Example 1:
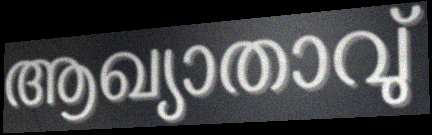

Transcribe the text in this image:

ആഖ്യാതാവു്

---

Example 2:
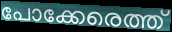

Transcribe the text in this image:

പോക്കേരെത്ത്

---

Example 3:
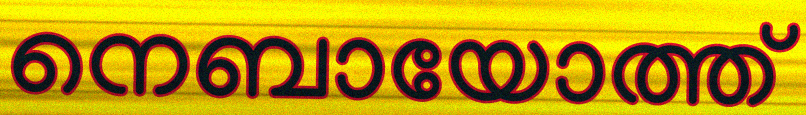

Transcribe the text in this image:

നെബായോത്ത്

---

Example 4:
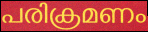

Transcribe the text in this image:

പരിക്രമണം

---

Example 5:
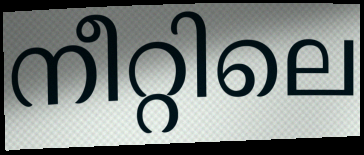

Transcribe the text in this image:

നീറ്റിലെ